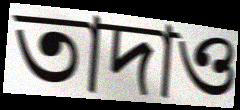
তাদাও